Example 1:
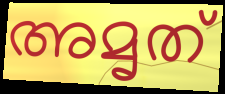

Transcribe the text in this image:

അമൃത്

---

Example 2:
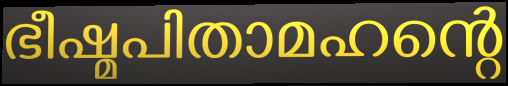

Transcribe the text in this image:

ഭീഷ്മപിതാമഹന്റെ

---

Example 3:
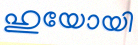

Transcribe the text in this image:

ഹുയോയി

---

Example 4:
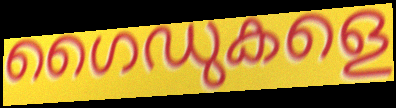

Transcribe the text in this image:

ഗൈഡുകളെ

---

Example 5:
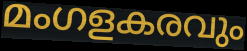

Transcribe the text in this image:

മംഗളകരവും